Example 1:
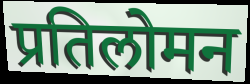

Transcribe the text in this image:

प्रतिलोमन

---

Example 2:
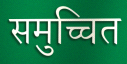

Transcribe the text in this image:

समुच्चित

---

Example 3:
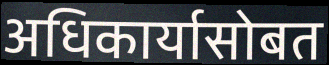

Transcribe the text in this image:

अधिकार्यासोबत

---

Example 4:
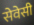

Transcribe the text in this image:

सेवेसी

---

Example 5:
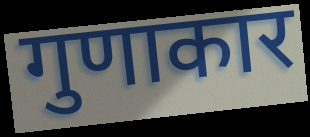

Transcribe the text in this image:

गुणाकार